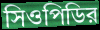
সিওপিডির